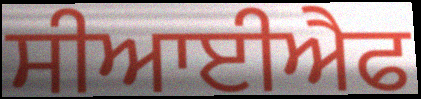
ਸੀਆਈਐਫ